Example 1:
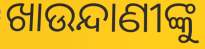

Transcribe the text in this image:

ଖାଉନ୍ଦାଣୀଙ୍କୁ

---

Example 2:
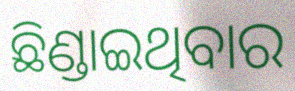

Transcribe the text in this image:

ଛିଣ୍ଡାଇଥିବାର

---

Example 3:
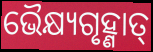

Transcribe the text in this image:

ଭୈକ୍ଷ୍ୟଗୃହ୍ଣାତ୍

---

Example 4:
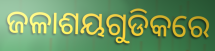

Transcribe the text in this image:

ଜଳାଶୟଗୁଡିକରେ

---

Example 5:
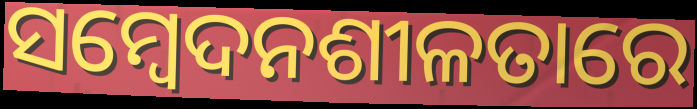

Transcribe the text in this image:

ସମ୍ବେଦନଶୀଳତାରେ